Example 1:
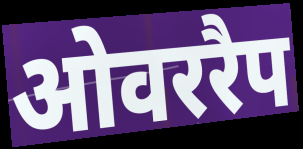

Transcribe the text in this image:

ओवररैप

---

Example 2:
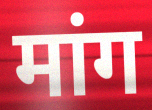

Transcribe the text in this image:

मांग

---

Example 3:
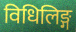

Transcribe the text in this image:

विधिलिङ्ग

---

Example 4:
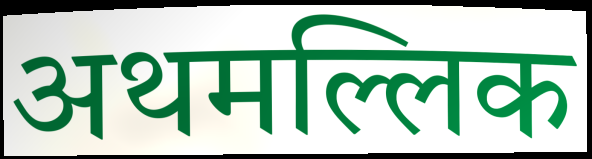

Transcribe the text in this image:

अथमल्लिक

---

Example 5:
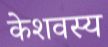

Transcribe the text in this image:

केशवस्य